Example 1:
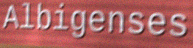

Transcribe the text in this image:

Albigenses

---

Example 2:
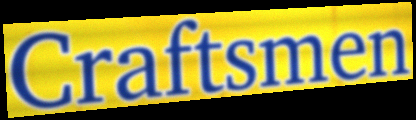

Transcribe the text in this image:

Craftsmen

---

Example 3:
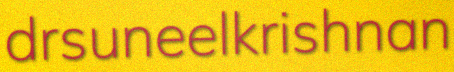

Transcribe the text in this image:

drsuneelkrishnan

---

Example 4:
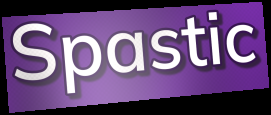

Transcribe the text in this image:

Spastic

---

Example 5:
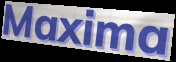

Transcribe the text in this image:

Maxima